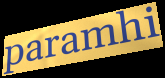
paramhi